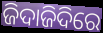
ଜିଦାଜିଦିରେ